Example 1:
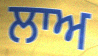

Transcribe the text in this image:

ਲਾਅ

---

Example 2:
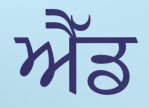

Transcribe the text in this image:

ਐੱਡ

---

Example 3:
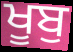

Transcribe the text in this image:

ਖੂਬੁ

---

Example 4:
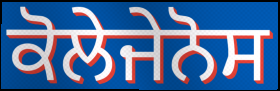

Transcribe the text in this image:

ਕੋਲੇਜੇਨੋਸ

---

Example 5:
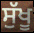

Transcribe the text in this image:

ਸੁੱਖੂ